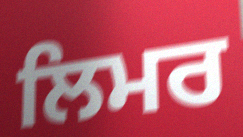
ਲਿਮਰ